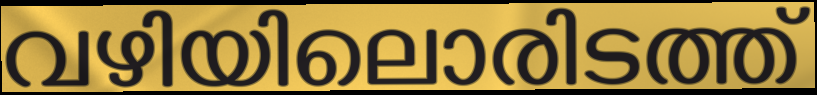
വഴിയിലൊരിടത്ത്